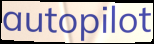
autopilot